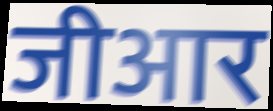
जीआर